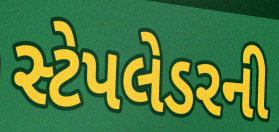
સ્ટેપલેડરની